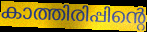
കാത്തിരിപ്പിന്റെ